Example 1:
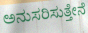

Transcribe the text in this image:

ಅನುಸರಿಸುತ್ತೇನೆ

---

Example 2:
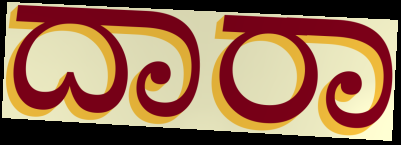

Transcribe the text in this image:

ದಾರಾ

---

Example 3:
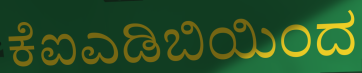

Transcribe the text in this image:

ಕೆಐಎಡಿಬಿಯಿಂದ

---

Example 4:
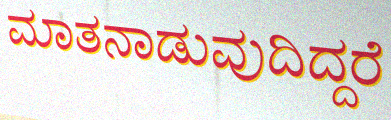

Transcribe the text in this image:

ಮಾತನಾಡುವುದಿದ್ದರೆ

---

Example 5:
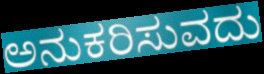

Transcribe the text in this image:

ಅನುಕರಿಸುವದು